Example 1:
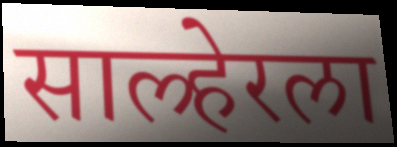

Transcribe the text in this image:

साल्हेरला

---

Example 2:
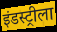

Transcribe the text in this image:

इंडस्ट्रीला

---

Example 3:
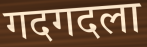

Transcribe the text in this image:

गदगदला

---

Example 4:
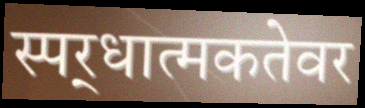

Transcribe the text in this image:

स्पर्धात्मकतेवर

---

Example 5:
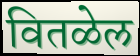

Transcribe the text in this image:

वितळेल